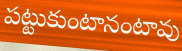
పట్టుకుంటానంటావు